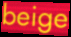
beige